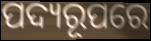
ପଦ୍ୟରୂପରେ